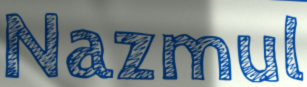
Nazmul